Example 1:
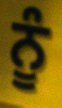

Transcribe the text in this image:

ਨੂੰ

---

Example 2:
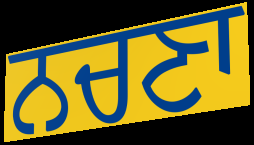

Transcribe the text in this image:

ਨਚਣਾ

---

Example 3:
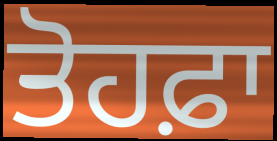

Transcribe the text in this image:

ਤੋਹਫ਼ਾ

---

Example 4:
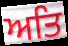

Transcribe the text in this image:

ਅਤਿ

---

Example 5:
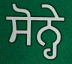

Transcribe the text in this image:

ਸੋਨ੍ਹੇ